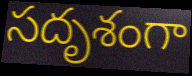
సదృశంగా